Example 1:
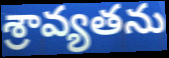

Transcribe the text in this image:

శ్రావ్యతను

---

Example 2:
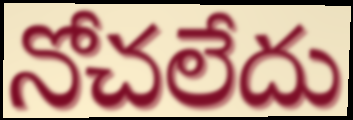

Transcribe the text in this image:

నోచలేదు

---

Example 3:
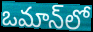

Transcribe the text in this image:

ఒమాన్‌లో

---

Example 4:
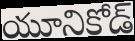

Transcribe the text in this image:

యూనికోడ్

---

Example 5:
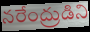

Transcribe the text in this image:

నరేంద్రుడిని